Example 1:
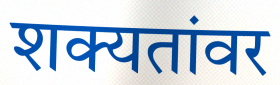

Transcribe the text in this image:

शक्यतांवर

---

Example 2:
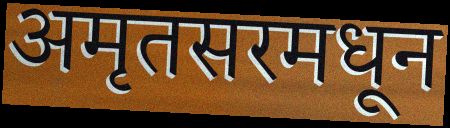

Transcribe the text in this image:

अमृतसरमधून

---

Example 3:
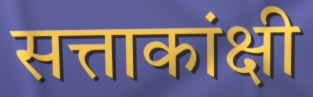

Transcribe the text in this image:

सत्ताकांक्षी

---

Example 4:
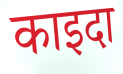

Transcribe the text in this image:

काइदा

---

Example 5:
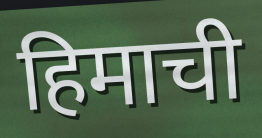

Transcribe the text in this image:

हिमाची